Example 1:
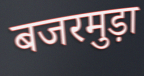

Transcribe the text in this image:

बजरमुड़ा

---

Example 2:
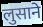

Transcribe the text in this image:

लुसाने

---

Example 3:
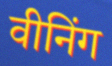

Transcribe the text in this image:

वीनिंग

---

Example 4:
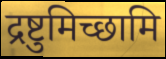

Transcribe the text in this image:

द्रष्टुमिच्छामि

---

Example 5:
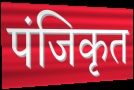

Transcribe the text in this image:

पंजिकृत